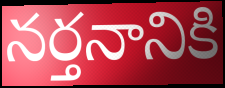
నర్తనానికి